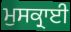
ਮੁਸਕ੍ਰਾਈ